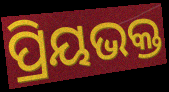
ପ୍ରିୟଭକ୍ତ